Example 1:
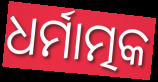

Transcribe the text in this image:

ଧର୍ମାତ୍ମକ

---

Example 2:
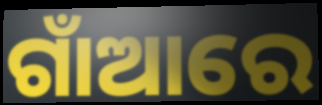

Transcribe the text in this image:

ଗାଁଆରେ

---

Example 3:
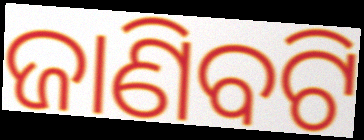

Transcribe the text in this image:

ଜାଣିବଟି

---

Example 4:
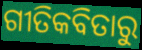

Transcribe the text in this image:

ଗୀତିକବିତାରୁ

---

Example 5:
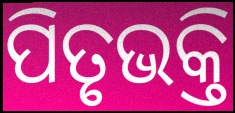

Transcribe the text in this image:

ପିତୃଭକ୍ତି